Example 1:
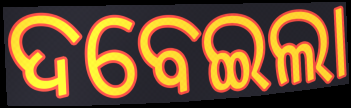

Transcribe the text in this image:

ଦବେଇଲା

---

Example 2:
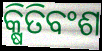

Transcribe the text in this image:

କ୍ଷିତିବଂଶ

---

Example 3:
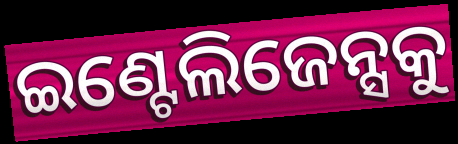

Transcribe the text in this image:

ଇଣ୍ଟେଲିଜେନ୍ସକୁ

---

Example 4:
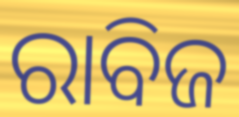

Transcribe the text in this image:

ରାବିଜ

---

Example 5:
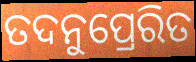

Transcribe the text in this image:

ତଦନୁପ୍ରେରିତ